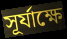
সূর্যাক্ষে